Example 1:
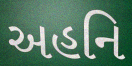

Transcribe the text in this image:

અહનિ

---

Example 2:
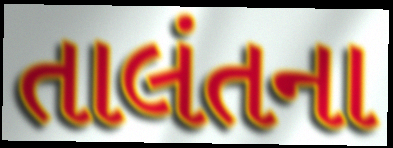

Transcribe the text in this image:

તાલંતના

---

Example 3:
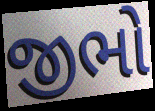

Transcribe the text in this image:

જીભો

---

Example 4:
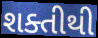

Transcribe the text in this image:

શક્તીથી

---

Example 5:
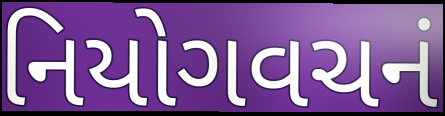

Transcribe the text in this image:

નિયોગવચનં